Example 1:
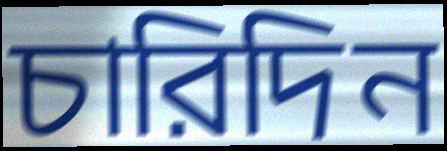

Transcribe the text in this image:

চারিদিন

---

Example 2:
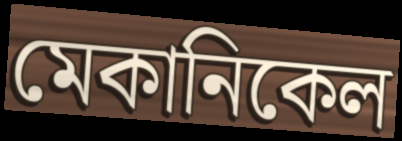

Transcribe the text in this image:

মেকানিকেল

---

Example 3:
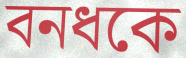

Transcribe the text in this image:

বনধকে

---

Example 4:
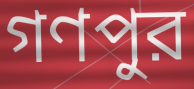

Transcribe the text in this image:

গণপুর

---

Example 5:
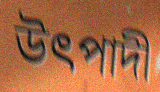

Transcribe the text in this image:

উৎপাদী